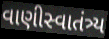
વાણીસ્વાતંત્ર્ય